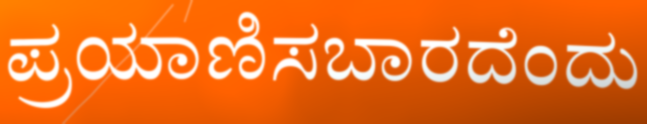
ಪ್ರಯಾಣಿಸಬಾರದೆಂದು